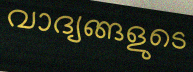
വാദ്യങ്ങളുടെ